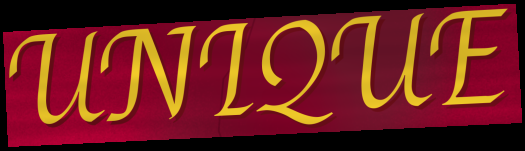
UNIQUE